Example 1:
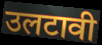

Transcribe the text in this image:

उलटावी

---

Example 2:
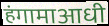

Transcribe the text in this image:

हंगामाआधी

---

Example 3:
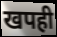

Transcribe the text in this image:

खपही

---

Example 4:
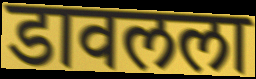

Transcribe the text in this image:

डावलला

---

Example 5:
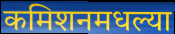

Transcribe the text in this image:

कमिशनमधल्या